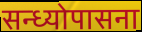
सन्ध्योपासना